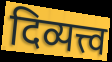
दिव्यत्त्व